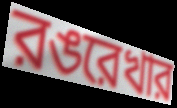
রঙরেখার